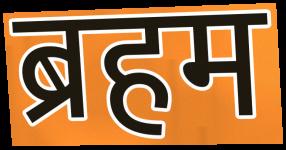
ब्रहम